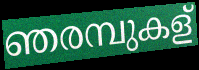
ഞരമ്പുകള്